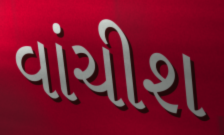
વાંચીશ